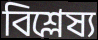
বিশ্লেষ্য